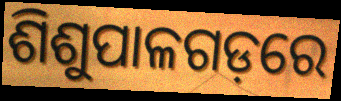
ଶିଶୁପାଳଗଡ଼ରେ